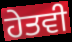
ਹੇਤਵੀ